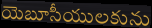
యెబూసీయులకును